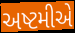
અષ્ટમીએ